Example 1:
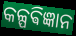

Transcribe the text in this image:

କଳ୍ପଵିଜ୍ଞାନ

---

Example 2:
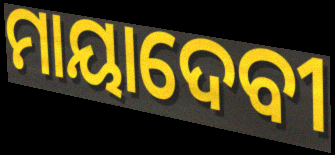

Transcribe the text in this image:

ମାୟାଦେବୀ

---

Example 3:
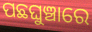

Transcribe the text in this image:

ପଛଘୁଞ୍ଚାରେ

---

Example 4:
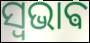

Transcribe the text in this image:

ସ୍ଵଭାଵ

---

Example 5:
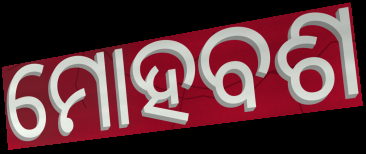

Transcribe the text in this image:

ମୋହବଶ